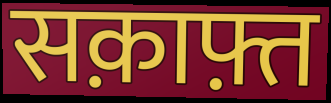
सक़ाफ़्त